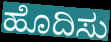
ಹೊದಿಸು